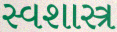
સ્વશાસ્ત્ર